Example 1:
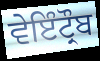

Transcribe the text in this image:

ਵੇਇੰਟ੍ਰੌਬ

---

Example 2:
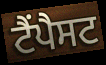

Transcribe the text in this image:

ਟੈਂਪੈਸਟ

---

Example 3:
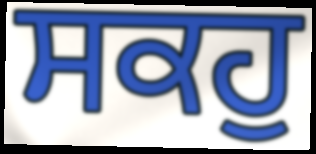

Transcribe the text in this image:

ਸਕਹੁ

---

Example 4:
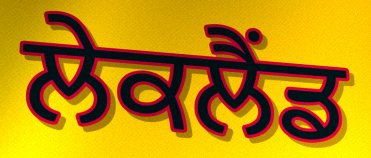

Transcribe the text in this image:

ਲੇਕਲੈਂਡ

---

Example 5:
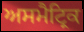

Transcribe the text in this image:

ਅਸਮੈਟ੍ਰਿਕ